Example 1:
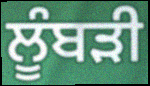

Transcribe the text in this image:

ਲੂੰਬੜੀ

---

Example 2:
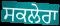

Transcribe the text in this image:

ਸਕਲੇਰਾ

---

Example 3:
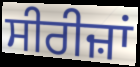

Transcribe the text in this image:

ਸੀਰੀਜ਼ਾਂ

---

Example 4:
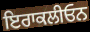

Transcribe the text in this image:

ਇਰਾਕਲੀਓਨ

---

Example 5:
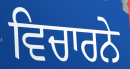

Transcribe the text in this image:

ਵਿਚਾਰਨੇ